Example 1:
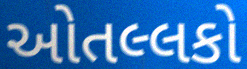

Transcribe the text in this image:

ઓતલ્લકો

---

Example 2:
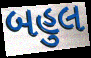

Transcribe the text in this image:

બહુલ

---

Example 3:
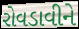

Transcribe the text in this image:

રોવડાવીને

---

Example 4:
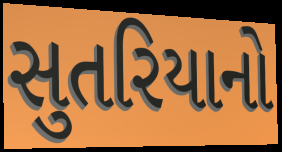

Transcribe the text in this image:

સુતરિયાનો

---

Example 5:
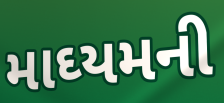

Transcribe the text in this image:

માઘ્યમની